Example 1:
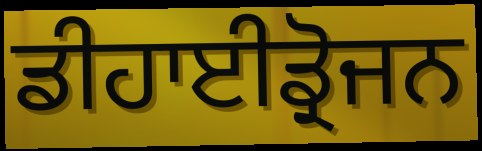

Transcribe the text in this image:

ਡੀਹਾਈਡ੍ਰੋਜਨ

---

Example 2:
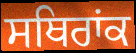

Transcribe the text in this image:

ਸਥਿਰਾਂਕ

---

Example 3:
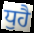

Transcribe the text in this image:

ਧੁਹੈ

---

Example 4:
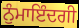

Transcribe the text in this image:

ਨੁੰਮਾਇੰਦਗੀ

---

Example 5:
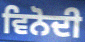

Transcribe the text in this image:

ਵਿਨੋਦੀ